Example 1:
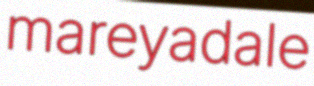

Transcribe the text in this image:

mareyadale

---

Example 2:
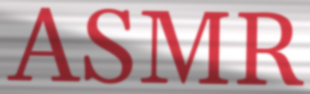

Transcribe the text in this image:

ASMR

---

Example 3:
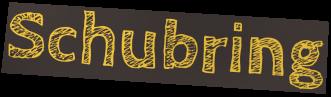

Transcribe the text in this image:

Schubring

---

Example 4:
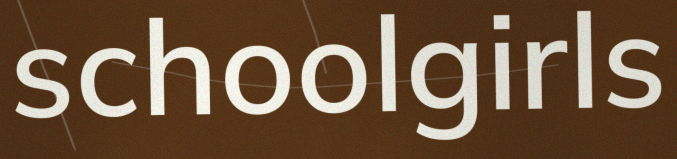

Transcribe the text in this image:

schoolgirls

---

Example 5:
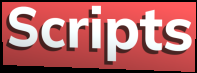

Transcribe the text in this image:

Scripts